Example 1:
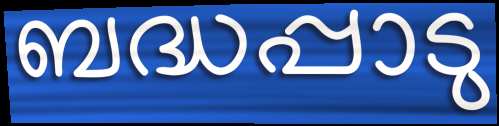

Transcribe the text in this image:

ബദ്ധപ്പാടു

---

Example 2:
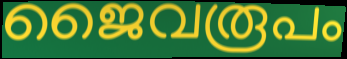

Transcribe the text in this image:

ജൈവരൂപം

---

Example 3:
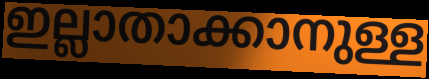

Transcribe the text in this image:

ഇല്ലാതാക്കാനുള്ള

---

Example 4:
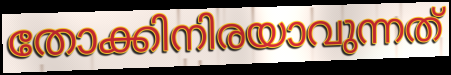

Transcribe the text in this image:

തോക്കിനിരയാവുന്നത്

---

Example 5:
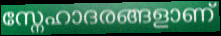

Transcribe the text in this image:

സ്നേഹാദരങ്ങളാണ്